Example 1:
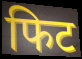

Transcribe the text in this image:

फिट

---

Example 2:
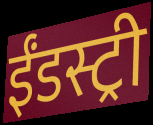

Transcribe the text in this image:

ईंडस्ट्री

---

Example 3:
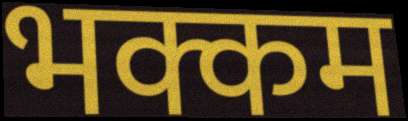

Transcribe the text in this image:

भक्कम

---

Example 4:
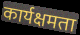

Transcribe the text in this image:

कार्यक्षमता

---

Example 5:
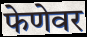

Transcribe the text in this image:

फेणेवर